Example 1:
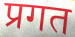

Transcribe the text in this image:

प्रगत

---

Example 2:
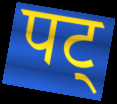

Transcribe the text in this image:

पट्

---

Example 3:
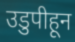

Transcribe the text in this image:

उडुपीहून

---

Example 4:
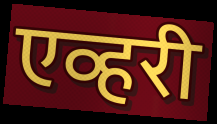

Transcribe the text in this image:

एव्हरी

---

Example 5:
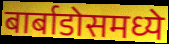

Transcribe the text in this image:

बार्बाडोसमध्ये